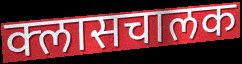
क्‍लासचालक